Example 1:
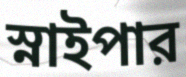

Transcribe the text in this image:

স্নাইপার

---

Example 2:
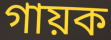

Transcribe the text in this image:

গায়ক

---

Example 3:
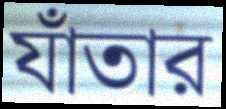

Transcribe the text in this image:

যাঁতার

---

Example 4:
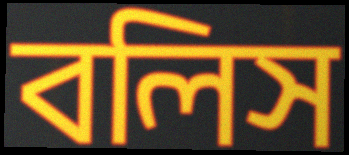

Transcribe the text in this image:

বলিস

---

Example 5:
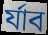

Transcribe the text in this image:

র্যাব